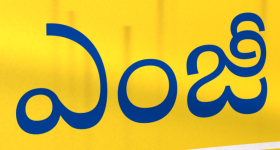
ఎంజీ